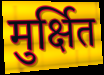
मुर्क्षित